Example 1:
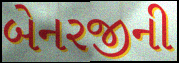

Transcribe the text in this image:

બેનરજીની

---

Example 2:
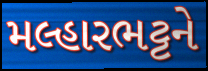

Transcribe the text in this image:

મલ્હારભટ્ટને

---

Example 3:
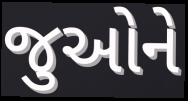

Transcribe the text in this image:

જુઓને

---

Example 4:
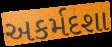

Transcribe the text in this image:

અકર્મદશા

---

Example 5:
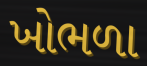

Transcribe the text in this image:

ખોભળા